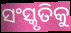
ସଂସ୍କୃତିକୁ